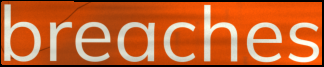
breaches